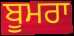
ਬੂਮਰਾ